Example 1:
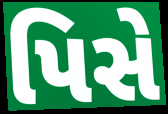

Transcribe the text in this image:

પિસે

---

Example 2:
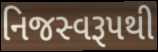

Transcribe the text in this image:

નિજસ્વરૂપથી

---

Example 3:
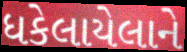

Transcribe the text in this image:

ધકેલાયેલાને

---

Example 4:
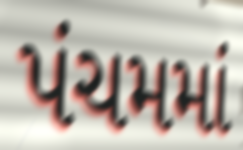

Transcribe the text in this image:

પંચમમાં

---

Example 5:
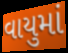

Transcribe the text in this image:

વાયુમાં